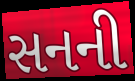
સનની